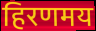
हिरणमय